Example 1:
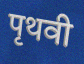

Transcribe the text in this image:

पृथवी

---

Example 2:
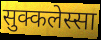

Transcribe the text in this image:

सुक्कलेस्सा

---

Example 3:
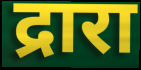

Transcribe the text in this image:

द्रारा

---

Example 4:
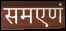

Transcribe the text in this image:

समएणं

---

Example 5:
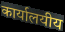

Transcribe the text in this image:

कार्यालयीय